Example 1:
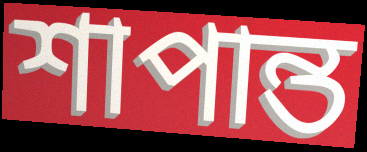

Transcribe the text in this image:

শাপান্ত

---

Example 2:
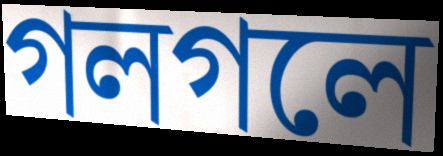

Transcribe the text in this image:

গলগলে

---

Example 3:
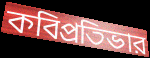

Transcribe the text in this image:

কবিপ্রতিভার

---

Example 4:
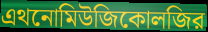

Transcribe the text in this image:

এথনোমিউজিকোলজির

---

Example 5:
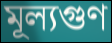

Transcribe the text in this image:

মূল্যগুণ